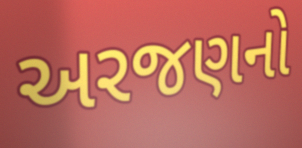
અરજણનો